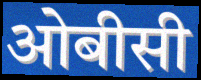
ओबीसी